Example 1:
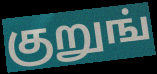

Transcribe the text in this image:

குறுங்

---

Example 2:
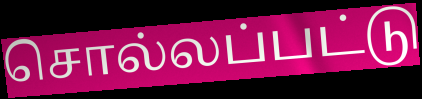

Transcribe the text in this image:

சொல்லப்பட்டு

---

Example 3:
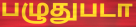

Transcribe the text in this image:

பழுதுபடா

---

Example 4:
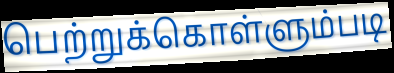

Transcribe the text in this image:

பெற்றுக்கொள்ளும்படி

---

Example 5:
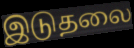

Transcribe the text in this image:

இடுதலை